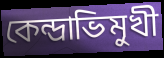
কেন্দ্রাভিমুখী